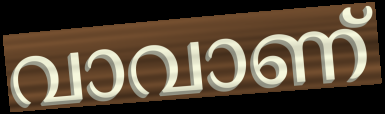
വാവാണ്